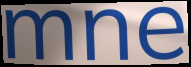
mne